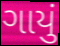
ગાયું